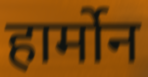
हार्मोन